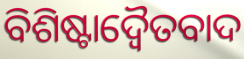
ବିଶିଷ୍ଟାଦ୍ଵୈତବାଦ